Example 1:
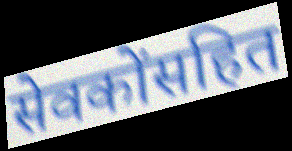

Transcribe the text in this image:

सेवकोंसहित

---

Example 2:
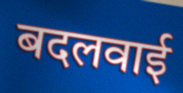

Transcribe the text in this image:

बदलवाई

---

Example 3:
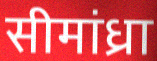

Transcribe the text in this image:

सीमांध्रा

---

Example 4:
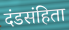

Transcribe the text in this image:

दंडसंहिता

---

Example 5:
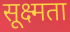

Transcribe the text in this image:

सूक्ष्मता